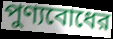
পুণ্যবোধের